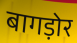
बागड़ोर